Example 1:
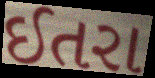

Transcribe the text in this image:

ઈતરા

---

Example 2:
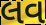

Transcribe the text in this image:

લવ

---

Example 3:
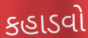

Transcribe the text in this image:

કહાડવો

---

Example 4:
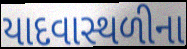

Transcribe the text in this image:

યાદવાસ્થળીના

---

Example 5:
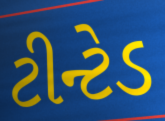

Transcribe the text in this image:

ટીન્ટેડ